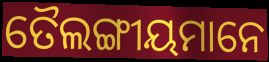
ତୈଲଙ୍ଗୀୟମାନେ